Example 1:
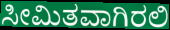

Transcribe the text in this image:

ಸೀಮಿತವಾಗಿರಲಿ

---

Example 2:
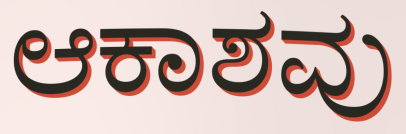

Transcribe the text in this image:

ಆಕಾಶವು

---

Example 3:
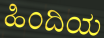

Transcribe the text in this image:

ಹಿಂದಿಯ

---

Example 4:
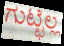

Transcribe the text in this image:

ಗುಟ್ಟೆಲ್ಲ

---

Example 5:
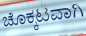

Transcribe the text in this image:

ಚೊಕ್ಕಟವಾಗಿ